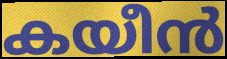
കയീൻ